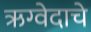
ऋग्वेदाचे